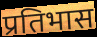
प्रतिभास